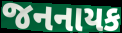
જનનાયક